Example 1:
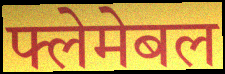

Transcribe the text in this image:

फ्लेमेबल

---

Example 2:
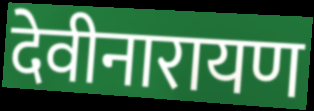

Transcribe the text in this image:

देवीनारायण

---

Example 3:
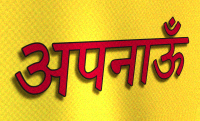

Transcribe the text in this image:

अपनाऊँ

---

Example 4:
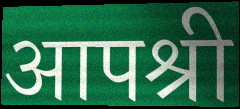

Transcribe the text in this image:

आपश्री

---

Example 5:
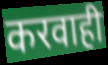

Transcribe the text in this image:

करवाही